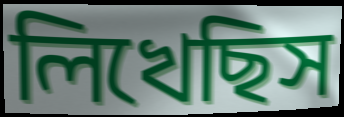
লিখেছিস